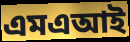
এমএআই